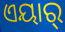
ଏୟାର୍